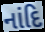
નાંદિ